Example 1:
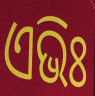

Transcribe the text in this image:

ଏଭିଃ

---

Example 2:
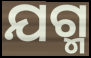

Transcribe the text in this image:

ଯଗ୍ମ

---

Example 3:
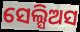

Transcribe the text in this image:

ସେଲ୍ସିଅସ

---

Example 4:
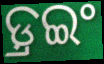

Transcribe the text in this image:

ଡ଼୍ରଇଂ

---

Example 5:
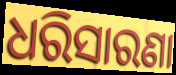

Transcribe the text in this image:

ଧରିସାରଣା